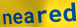
neared